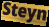
Steyn